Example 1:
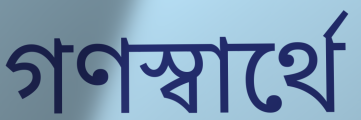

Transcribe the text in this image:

গণস্বার্থে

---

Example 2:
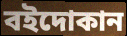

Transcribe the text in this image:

বইদোকান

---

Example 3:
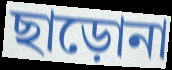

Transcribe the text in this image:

ছাড়োনা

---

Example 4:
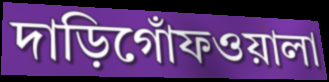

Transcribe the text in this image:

দাড়িগোঁফওয়ালা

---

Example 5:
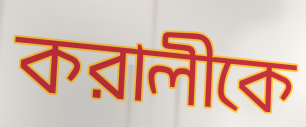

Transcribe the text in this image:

করালীকে